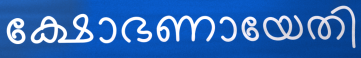
ക്ഷോഭണായേതി